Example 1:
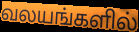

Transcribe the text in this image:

வலயங்களில்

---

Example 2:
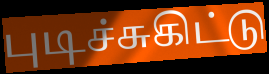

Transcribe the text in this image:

புடிச்சுகிட்டு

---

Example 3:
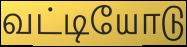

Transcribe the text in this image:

வட்டியோடு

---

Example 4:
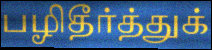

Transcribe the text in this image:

பழிதீர்த்துக்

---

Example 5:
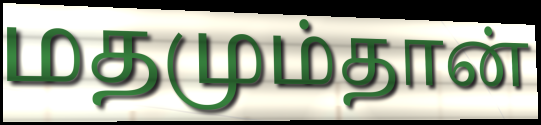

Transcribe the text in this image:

மதமும்தான்